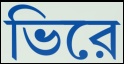
ভিরে